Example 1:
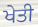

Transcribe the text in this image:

ਖੇਤੀ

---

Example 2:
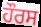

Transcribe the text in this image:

ਹੌਰਸ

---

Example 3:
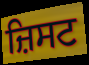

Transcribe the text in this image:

ਜ਼ਿਸਟ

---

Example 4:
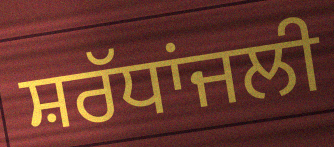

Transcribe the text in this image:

ਸ਼ਰੱਧਾਂਜਲੀ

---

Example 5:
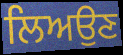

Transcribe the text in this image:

ਲਿਅਉਣ